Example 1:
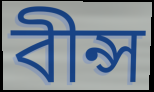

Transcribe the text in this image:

বীন্স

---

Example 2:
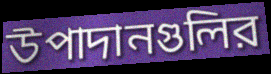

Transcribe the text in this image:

উপাদানগুলির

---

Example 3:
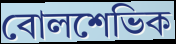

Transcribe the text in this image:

বোলশেভিক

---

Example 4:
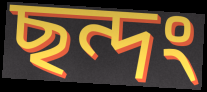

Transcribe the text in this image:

ছন্দং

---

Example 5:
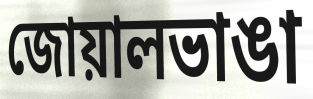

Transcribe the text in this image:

জোয়ালভাঙা